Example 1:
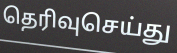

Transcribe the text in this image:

தெரிவுசெய்து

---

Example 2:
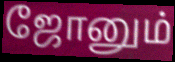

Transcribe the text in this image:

ஜோனும்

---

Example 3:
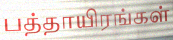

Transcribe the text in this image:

பத்தாயிரங்கள்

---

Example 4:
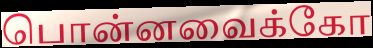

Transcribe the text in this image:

பொன்னவைக்கோ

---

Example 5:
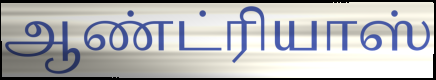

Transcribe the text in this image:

ஆண்ட்ரியாஸ்